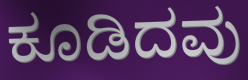
ಕೂಡಿದವು